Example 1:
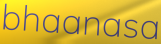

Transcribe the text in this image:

bhaanasa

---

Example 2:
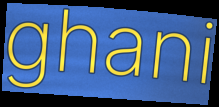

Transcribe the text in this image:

ghani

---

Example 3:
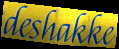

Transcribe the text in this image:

deshakke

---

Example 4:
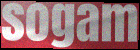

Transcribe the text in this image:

sogam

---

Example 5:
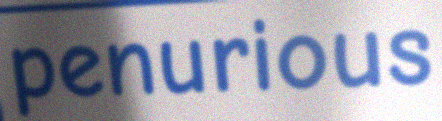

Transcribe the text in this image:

penurious